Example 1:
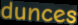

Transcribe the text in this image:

dunces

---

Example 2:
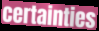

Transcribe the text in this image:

certainties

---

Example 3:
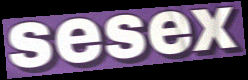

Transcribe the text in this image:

sesex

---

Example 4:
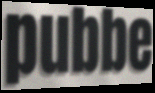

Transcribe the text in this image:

pubbe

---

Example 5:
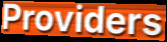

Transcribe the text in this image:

Providers